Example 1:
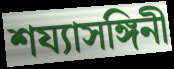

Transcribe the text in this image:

শয্যাসঙ্গিনী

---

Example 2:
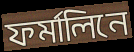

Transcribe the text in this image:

ফর্মালিনে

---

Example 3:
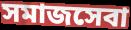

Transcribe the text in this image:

সমাজসেবা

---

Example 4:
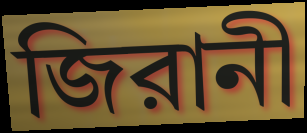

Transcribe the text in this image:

জিরানী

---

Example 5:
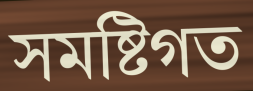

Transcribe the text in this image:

সমষ্টিগত